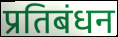
प्रतिबंधन